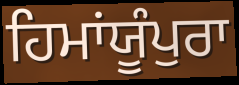
ਹਿਮਾਂਯੂੰਪੁਰਾ